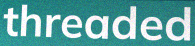
threaded